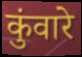
कुंवारे